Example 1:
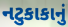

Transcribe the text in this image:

નટુકાકાનું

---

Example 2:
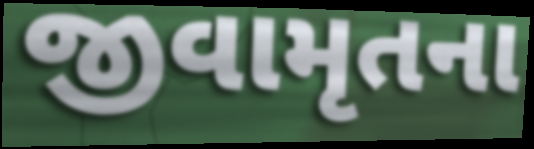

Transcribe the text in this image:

જીવામૃતના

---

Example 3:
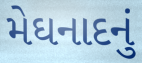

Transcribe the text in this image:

મેઘનાદનું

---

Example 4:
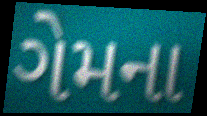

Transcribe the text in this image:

ગેમના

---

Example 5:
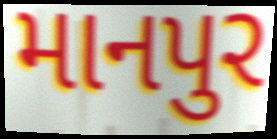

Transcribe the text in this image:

માનપુર